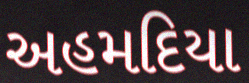
અહમદિયા